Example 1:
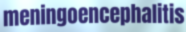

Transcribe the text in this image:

meningoencephalitis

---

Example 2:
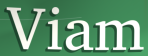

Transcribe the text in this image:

Viam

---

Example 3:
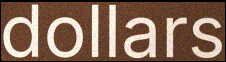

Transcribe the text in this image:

dollars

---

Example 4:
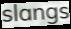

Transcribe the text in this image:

slangs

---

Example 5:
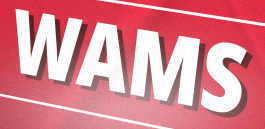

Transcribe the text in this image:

WAMS